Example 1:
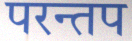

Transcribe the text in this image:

परन्तप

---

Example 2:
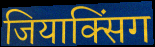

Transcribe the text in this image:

जियाक्सिंग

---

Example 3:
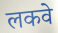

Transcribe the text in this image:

लकवे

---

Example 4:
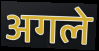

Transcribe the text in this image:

अगले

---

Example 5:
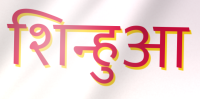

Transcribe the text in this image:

शिन्हुआ